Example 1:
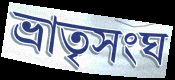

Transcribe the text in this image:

ভ্রাতৃসংঘ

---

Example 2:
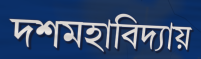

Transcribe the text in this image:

দশমহাবিদ্যায়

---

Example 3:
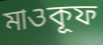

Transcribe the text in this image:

মাওকূফ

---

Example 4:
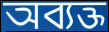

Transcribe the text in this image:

অব্যক্ত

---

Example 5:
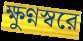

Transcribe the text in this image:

ক্ষুণ্নস্বরে